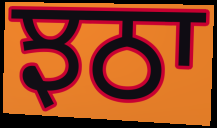
ਝਠਾ